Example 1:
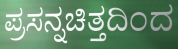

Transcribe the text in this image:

ಪ್ರಸನ್ನಚಿತ್ತದಿಂದ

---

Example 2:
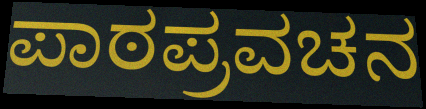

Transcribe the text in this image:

ಪಾಠಪ್ರವಚನ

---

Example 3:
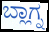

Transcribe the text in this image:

ಬ್ಲಾಗ್ನ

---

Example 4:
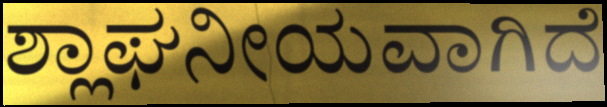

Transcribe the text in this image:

ಶ್ಲಾಘನೀಯವಾಗಿದೆ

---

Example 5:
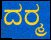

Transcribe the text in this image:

ದರ‍್ಮ